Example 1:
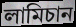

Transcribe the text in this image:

লামিচান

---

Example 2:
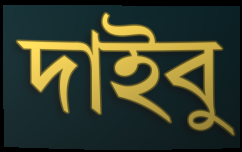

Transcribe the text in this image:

দাইবু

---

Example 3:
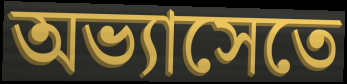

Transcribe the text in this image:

অভ্যাসেতে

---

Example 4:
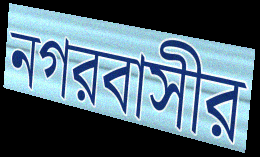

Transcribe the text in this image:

নগরবাসীর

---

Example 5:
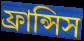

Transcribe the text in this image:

ফ্রান্সিস